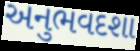
અનુભવદશા